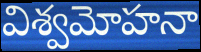
విశ్వమోహనా